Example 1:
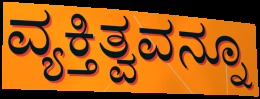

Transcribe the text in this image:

ವ್ಯಕ್ತಿತ್ವವನ್ನೂ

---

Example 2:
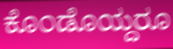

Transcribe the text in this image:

ಕೊಂಡೊಯ್ದರೂ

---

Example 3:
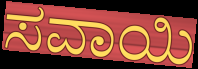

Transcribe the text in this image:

ಸವಾಯಿ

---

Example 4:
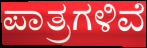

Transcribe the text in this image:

ಪಾತ್ರಗಳಿವೆ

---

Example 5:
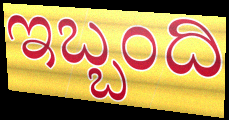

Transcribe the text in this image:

ಇಬ್ಬಂದಿ